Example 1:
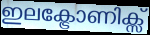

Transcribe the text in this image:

ഇലക്ട്രോണിക്സ്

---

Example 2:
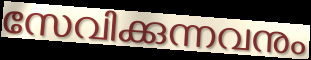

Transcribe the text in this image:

സേവിക്കുന്നവനും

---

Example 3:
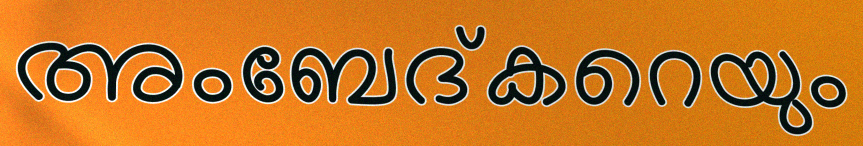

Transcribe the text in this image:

അംബേദ്കറെയും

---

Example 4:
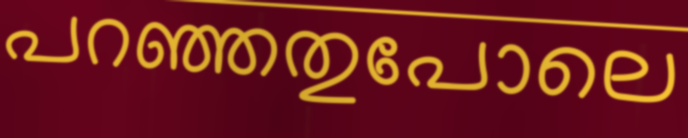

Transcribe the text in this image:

പറഞ്ഞതുപോലെ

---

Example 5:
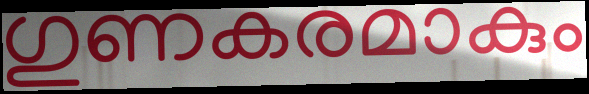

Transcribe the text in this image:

ഗുണകരമാകും